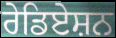
ਰੇਡਿਏਸ਼ਨ